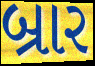
બ્રાર